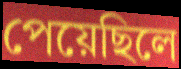
পেয়েছিলে